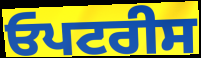
ਓਪਟਰੀਸ